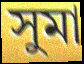
সুমা